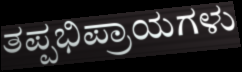
ತಪ್ಪಭಿಪ್ರಾಯಗಳು